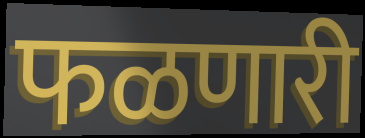
फळणारी